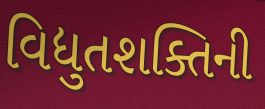
વિદ્યુતશક્તિની